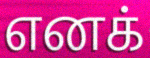
எனக்